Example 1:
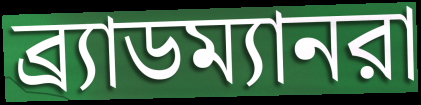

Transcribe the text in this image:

ব্র্যাডম্যানরা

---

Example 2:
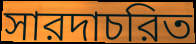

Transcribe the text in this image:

সারদাচরিত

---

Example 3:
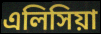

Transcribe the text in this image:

এলিসিয়া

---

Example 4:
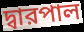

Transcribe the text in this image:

দ্বারপাল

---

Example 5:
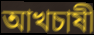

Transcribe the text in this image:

আখচাষী